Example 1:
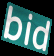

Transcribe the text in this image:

bid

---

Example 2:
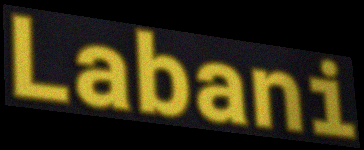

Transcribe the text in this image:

Labani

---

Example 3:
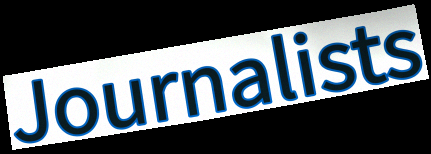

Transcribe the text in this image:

Journalists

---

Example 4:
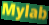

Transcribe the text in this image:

Mylab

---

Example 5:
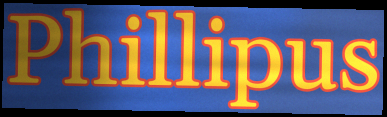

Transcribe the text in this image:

Phillipus